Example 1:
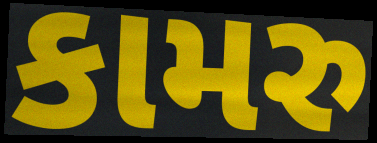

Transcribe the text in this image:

કામરુ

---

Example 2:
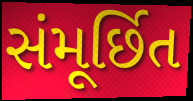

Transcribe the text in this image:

સંમૂર્છિત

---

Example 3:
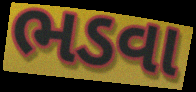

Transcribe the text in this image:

ભડવા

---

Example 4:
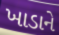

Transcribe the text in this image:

ખાડાને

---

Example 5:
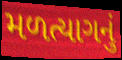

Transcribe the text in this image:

મળત્યાગનું